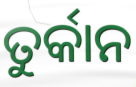
ତୁର୍କାନ